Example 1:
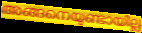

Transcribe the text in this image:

അങ്ങനെയുണ്ടായില്ല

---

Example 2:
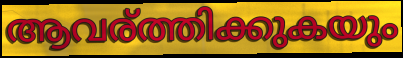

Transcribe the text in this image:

ആവര്ത്തിക്കുകയും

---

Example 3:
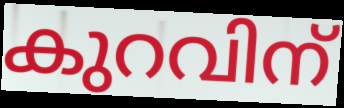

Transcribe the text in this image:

കുറവിന്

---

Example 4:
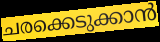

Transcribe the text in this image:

ചരക്കെടുക്കാൻ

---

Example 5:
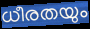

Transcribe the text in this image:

ധീരതയും